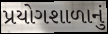
પ્રયોગશાળાનું